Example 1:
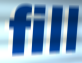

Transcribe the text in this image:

fill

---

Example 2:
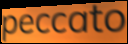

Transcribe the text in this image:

peccato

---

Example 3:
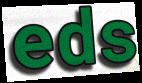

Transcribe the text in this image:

eds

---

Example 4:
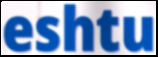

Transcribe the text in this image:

eshtu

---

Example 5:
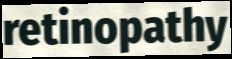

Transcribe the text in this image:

retinopathy